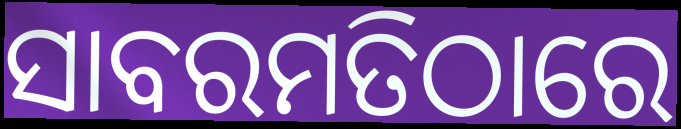
ସାବରମତିଠାରେ